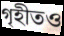
গৃহীতও